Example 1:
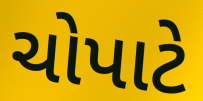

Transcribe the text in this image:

ચોપાટે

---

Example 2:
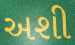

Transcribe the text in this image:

અશી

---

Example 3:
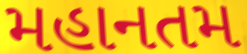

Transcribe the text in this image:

મહાનતમ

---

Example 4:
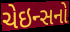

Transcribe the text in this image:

ચેઇન્સનો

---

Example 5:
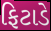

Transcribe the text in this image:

ફિટાડે